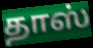
தாஸ்